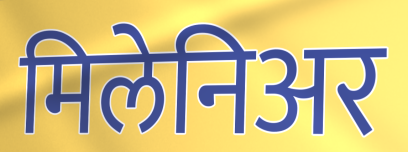
मिलेनिअर